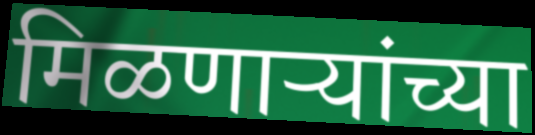
मिळणाऱ्यांच्या